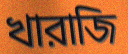
খারাজি